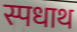
स्पधाथ